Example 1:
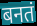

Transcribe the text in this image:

बनतं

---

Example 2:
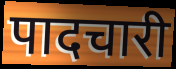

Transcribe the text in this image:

पादचारी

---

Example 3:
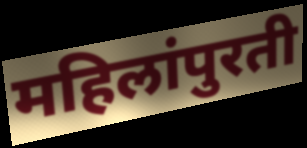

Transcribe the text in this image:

महिलांपुरती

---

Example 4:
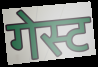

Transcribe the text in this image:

गेस्ट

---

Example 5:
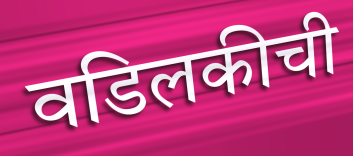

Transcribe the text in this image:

वडिलकीची